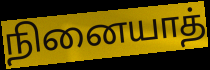
நினையாத்